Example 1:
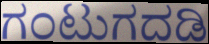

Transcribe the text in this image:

ಗಂಟುಗದಡಿ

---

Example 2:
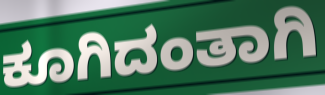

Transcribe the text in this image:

ಕೂಗಿದಂತಾಗಿ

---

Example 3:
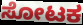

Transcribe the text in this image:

ಸೋಟಕ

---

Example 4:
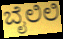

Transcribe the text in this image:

ಬೈಲಿಲಿ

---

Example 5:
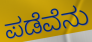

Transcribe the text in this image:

ಪಡೆವೆನು